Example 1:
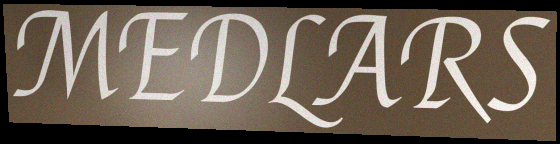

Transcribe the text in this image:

MEDLARS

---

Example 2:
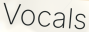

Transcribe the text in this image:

Vocals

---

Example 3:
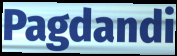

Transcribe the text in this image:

Pagdandi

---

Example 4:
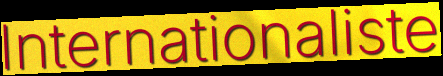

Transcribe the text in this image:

Internationaliste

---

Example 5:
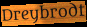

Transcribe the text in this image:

Dreybrodt